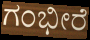
ಗಂಭೀರೆ